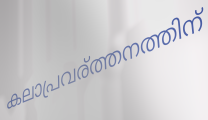
കലാപ്രവര്ത്തനത്തിന്